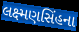
લક્ષ્મણસિંહના